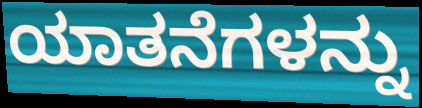
ಯಾತನೆಗಳನ್ನು